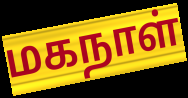
மகநாள்